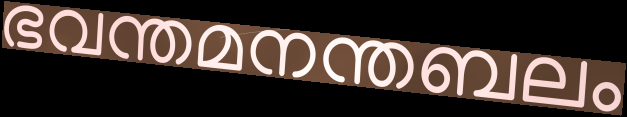
ഭവന്തമനന്തബലം